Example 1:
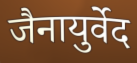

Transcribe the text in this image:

जैनायुर्वेद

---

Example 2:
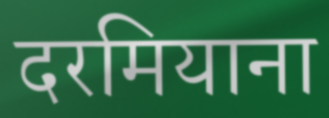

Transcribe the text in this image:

दरमियाना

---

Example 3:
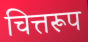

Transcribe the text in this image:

चित्तरूप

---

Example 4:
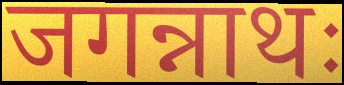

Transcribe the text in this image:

जगन्नाथः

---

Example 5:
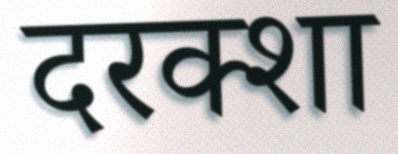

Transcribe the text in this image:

दरक्शा